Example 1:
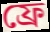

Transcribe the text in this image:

ফ্রে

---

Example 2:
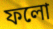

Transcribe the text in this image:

ফলো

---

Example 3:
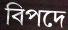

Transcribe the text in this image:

বিপদে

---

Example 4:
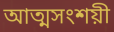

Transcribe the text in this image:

আত্মসংশয়ী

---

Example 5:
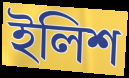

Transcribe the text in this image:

ইলিশ